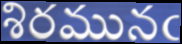
శిరమునఁ